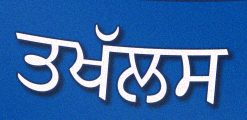
ਤਖੱਲਸ